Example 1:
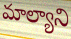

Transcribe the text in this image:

మాల్యాని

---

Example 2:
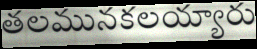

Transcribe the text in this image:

తలమునకలయ్యారు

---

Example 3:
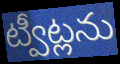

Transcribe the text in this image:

ట్వీట్లను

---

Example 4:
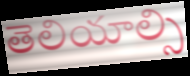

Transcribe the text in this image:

తెలియాల్సి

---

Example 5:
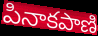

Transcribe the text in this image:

పినాకపాణి